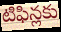
టిఫిన్లకు